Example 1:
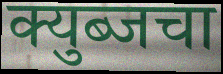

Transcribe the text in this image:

क्युब्जचा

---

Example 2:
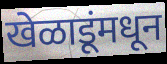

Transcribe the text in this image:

खेळाडूंमधून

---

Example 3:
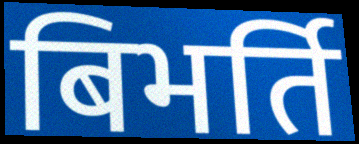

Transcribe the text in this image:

बिभर्ति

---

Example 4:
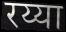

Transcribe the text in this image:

रय्या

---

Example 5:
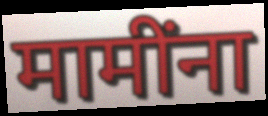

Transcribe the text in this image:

मामींना